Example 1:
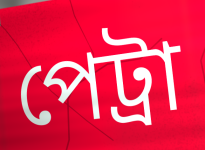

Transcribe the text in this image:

পেট্রা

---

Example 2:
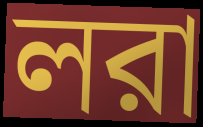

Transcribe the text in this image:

লরা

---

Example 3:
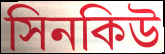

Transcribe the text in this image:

সিনকিউ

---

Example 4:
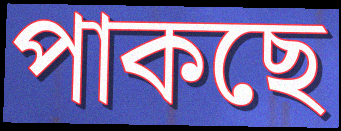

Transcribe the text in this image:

পাকছে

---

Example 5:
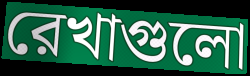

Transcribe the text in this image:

রেখাগুলো